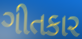
ગીતકાર